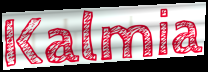
Kalmia